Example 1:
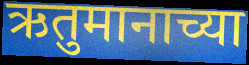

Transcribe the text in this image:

ऋतुमानाच्या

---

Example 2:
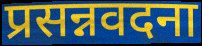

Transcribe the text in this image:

प्रसन्नवदना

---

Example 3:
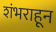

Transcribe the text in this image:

शंभराहून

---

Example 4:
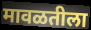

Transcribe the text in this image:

मावळतीला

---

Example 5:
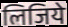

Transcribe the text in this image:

लिजिये